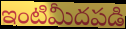
ఇంటిమీదపడి